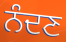
ਨੰਦਣ